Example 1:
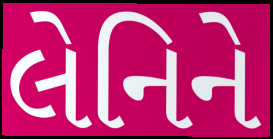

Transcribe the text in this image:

લેનિને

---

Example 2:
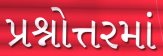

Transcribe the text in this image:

પ્રશ્નોત્તરમાં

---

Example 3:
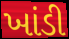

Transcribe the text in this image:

ખાંડી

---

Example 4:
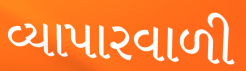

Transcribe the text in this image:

વ્યાપારવાળી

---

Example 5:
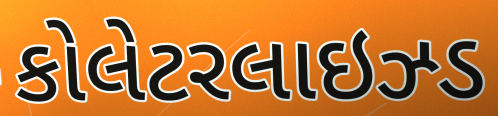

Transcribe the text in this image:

કોલેટરલાઇઝ્ડ